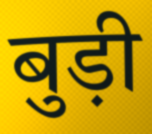
बुड़ी